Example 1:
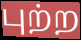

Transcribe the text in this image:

புற்ற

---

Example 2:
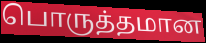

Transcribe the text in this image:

பொருத்தமான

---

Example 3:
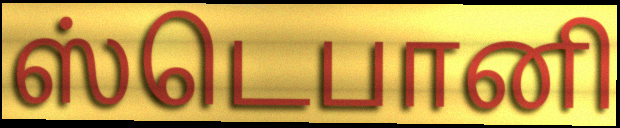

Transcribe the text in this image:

ஸ்டெபானி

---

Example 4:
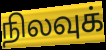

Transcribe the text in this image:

நிலவுக்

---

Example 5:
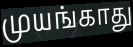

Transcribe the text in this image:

முயங்காது